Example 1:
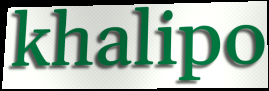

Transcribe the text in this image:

khalipo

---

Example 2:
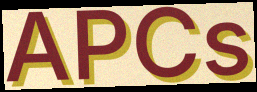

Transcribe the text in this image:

APCs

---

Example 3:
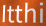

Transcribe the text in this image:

Itthi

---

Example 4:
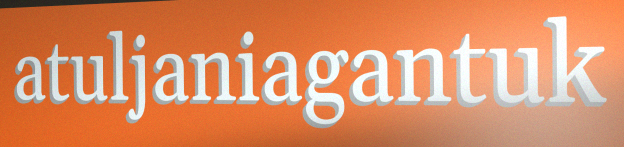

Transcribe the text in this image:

atuljaniagantuk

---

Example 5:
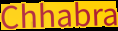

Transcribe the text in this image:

Chhabra